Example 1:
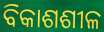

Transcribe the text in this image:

ବିକାଶଶୀଳ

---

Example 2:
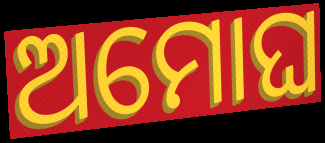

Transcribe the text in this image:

ଅମୋଘ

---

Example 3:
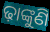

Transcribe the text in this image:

ଢ଼ାଙ୍କୁଣି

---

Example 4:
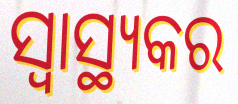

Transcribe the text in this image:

ସ୍ୱାସ୍ଥ୍ୟକର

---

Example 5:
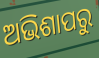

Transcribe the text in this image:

ଅଭିଶାପରୁ